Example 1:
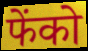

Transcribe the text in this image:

फेंको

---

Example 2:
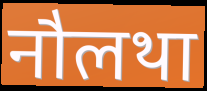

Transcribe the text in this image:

नौलथा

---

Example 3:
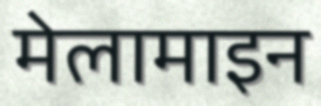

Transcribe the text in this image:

मेलामाइन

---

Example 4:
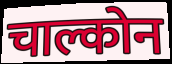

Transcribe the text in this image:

चाल्कोन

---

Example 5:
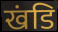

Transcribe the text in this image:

खंडि